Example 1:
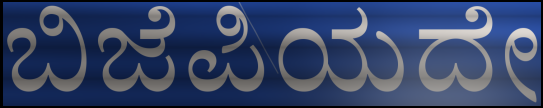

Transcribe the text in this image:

ಬಿಜೆಪಿಯದೇ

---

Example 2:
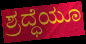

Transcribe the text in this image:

ಶ್ರದ್ಧೆಯೂ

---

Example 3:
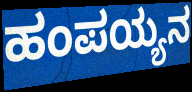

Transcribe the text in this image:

ಹಂಪಯ್ಯನ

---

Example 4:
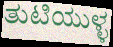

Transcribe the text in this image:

ತುಟಿಯುಳ್ಳ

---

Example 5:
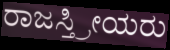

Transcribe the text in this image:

ರಾಜಸ್ತ್ರೀಯರು